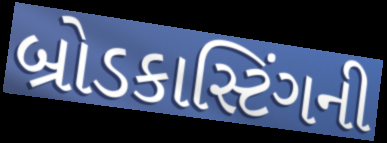
બ્રોડકાસ્ટિંગની